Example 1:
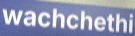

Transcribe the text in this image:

wachchethi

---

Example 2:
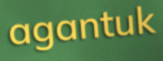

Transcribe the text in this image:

agantuk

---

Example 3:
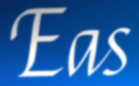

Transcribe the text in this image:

Eas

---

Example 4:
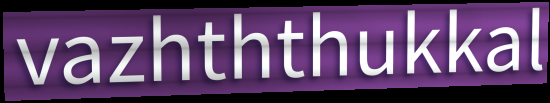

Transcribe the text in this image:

vazhththukkal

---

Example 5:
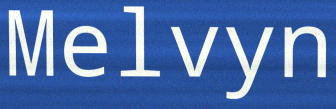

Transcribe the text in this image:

Melvyn